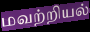
மவற்றியல்